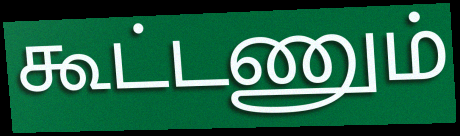
கூட்டணும்